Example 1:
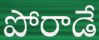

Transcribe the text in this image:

పోరాడే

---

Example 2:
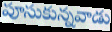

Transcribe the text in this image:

పూసుకున్నవాడు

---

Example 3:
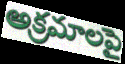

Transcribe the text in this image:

అక్రమాలపై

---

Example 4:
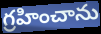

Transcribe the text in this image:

గ్రహించాను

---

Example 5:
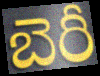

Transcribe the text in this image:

బెరీ